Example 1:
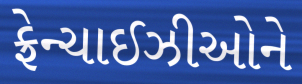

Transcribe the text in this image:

ફ્રેન્ચાઈઝીઓને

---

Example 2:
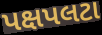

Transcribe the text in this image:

પક્ષપલટા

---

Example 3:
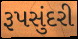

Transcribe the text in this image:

રૂપસુંદરી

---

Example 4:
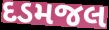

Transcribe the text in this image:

દડમજલ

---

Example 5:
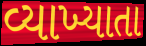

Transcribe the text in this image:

વ્યાખ્યાતા